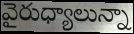
వైరుధ్యాలున్నా